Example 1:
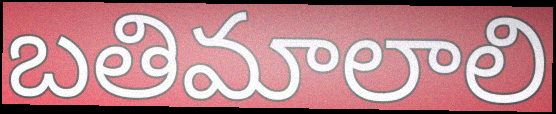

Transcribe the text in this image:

బతిమాలాలి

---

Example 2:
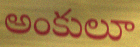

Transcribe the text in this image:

అంకులూ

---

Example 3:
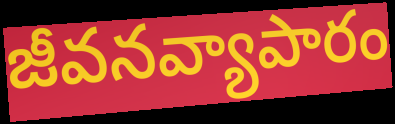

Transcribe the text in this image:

జీవనవ్యాపారం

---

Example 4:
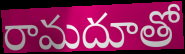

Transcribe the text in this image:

రామదూతో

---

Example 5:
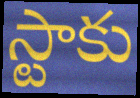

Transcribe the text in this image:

స్టాకు